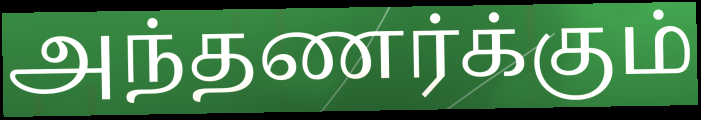
அந்தணர்க்கும்